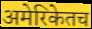
अमेरिकेतच